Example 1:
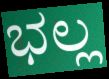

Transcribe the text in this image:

ಭಲ್ಲ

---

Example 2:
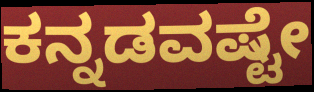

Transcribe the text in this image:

ಕನ್ನಡವಷ್ಟೇ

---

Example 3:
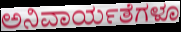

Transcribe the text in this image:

ಅನಿವಾರ್ಯತೆಗಳೂ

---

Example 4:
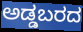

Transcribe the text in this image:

ಅಡ್ಡಬರದ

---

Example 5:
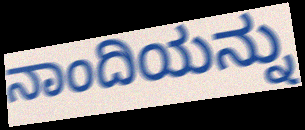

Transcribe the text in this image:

ನಾಂದಿಯನ್ನು